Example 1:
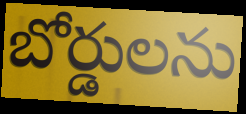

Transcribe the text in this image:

బోర్డులను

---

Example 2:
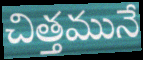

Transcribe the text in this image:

చిత్తమునే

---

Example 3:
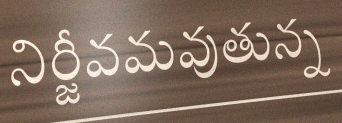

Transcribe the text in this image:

నిర్జీవమవుతున్న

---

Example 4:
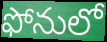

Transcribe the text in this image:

ఫోనులో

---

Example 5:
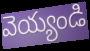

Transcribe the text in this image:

వెయ్యండి